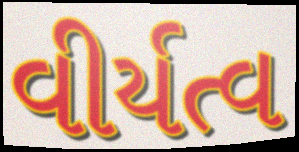
વીર્યત્વ